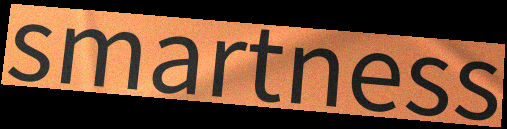
smartness